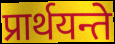
प्रार्थयन्ते